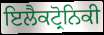
ਇਲੈਕਟ੍ਰੋਨਿਕੀ